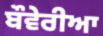
ਬੌਵੇਰੀਆ